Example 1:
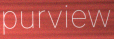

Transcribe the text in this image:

purview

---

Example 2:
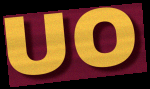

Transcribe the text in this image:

UO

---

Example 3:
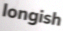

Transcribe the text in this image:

longish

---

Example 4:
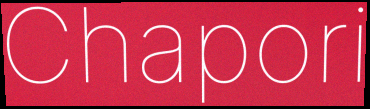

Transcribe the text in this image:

Chapori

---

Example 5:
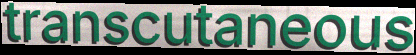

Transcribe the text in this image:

transcutaneous